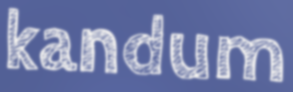
kandum